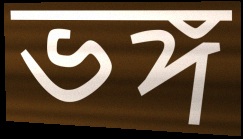
ভঙ্গ